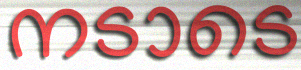
നടാടെ